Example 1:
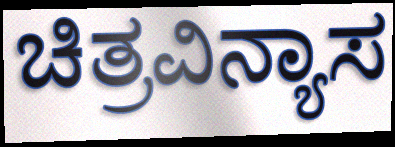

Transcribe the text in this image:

ಚಿತ್ರವಿನ್ಯಾಸ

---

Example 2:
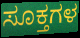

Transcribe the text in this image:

ಸೂಕ್ತಗಳ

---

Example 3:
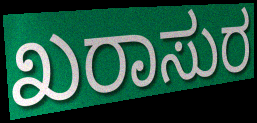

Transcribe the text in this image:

ಖರಾಸುರ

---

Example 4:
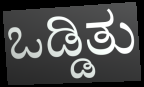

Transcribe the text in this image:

ಒಡ್ಡಿತು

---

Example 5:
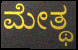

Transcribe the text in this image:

ಮೇತ್ಥ